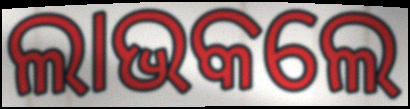
ଲାଭକଲେ